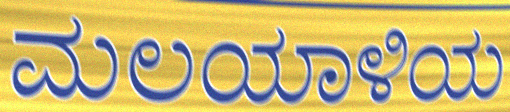
ಮಲಯಾಳಿಯ